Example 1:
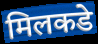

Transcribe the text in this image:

मिलकडे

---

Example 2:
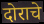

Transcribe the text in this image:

दोराचे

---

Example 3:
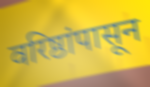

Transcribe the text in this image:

वरिष्ठांपासून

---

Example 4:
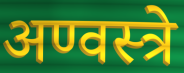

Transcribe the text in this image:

अण्वस्त्रे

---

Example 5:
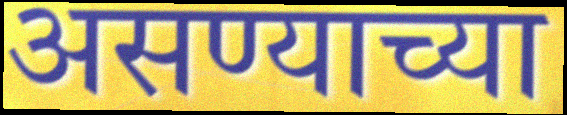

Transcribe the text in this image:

असण्याच्या